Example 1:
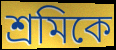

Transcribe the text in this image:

শ্ৰমিকে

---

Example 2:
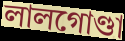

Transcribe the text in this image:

লালগোণ্ডা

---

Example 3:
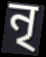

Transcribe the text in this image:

নৃ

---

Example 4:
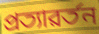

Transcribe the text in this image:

প্ৰত্যাৱৰ্তন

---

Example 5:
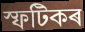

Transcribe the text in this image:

স্ফটিকৰ